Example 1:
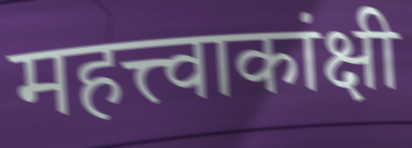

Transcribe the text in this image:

महत्त्वाकांक्षी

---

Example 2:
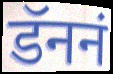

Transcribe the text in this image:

डॅननं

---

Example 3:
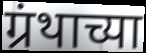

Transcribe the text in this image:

ग्रंथाच्या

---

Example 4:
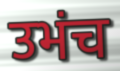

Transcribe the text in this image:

उभंच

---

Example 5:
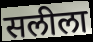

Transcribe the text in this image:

सलीला